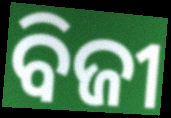
ବିଜୀ